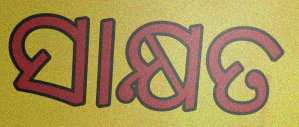
ସାକ୍ଷତ